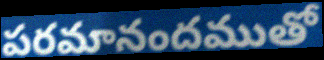
పరమానందముతో